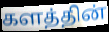
களத்தின்